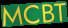
MCBT